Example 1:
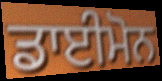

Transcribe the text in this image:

ਡਾਈਮੋਨ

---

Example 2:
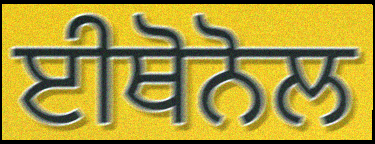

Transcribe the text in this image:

ਈਥੋਨੋਲ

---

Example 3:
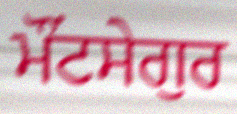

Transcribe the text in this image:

ਮੌਂਟਸੇਗੁਰ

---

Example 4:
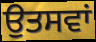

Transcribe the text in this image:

ਉਤਸਵਾਂ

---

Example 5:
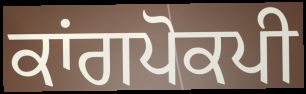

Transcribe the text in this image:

ਕਾਂਗਪੋਕਪੀ